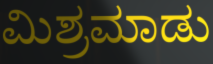
ಮಿಶ್ರಮಾಡು